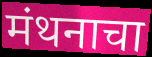
मंथनाचा